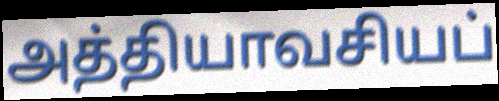
அத்தியாவசியப்